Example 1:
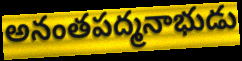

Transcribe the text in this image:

అనంతపద్మనాభుడు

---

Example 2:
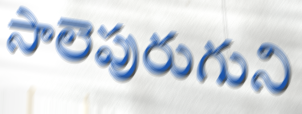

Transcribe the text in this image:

సాలెపురుగుని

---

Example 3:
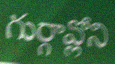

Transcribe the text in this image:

గుర్గావ్లోని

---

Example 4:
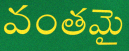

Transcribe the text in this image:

వంతమై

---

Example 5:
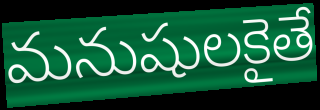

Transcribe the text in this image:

మనుషులకైతే